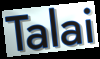
Talai